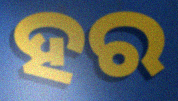
ହର